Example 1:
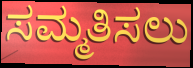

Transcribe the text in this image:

ಸಮ್ಮತಿಸಲು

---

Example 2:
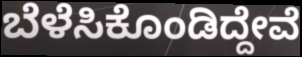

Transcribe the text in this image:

ಬೆಳೆಸಿಕೊಂಡಿದ್ದೇವೆ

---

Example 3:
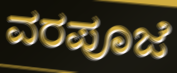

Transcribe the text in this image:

ವರಪೂಜೆ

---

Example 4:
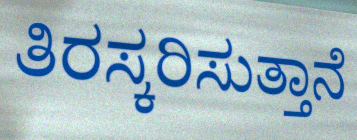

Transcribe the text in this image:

ತಿರಸ್ಕರಿಸುತ್ತಾನೆ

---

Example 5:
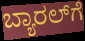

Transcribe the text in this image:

ಬ್ಯಾರಲ್‌ಗೆ